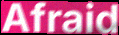
Afraid